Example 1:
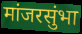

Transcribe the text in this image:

मांजरसुंभा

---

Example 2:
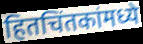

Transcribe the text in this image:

हितचिंतकांमध्ये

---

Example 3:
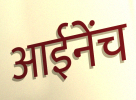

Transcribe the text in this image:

आईनेंच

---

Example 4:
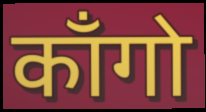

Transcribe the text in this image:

काँगो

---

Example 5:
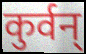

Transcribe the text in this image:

कुर्वन्